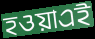
হওয়াএই